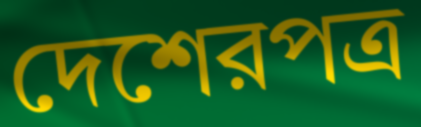
দেশেরপত্র